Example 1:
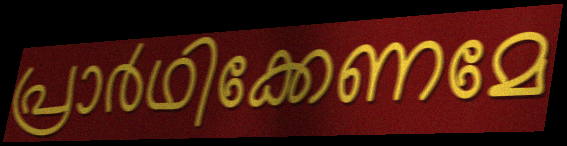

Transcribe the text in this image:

പ്രാർഥിക്കേണമേ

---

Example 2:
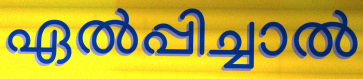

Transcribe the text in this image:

ഏൽപ്പിച്ചാൽ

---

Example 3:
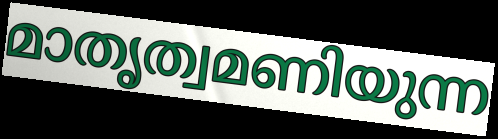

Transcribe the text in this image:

മാതൃത്വമണിയുന്ന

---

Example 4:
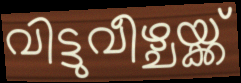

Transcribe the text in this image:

വിട്ടുവീഴ്ചയ്ക്ക്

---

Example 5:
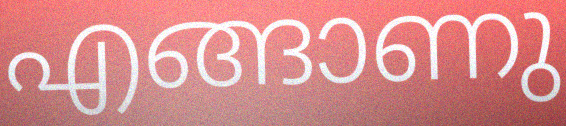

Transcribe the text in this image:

എങ്ങാണു